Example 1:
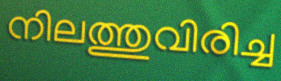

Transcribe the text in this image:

നിലത്തുവിരിച്ച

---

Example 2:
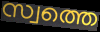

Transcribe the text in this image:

സ്വത്തെ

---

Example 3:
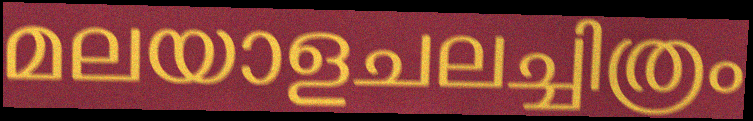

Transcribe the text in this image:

മലയാളചലച്ചിത്രം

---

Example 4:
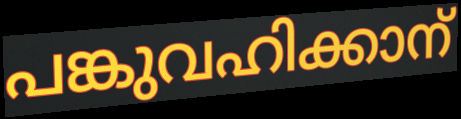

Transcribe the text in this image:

പങ്കുവഹിക്കാന്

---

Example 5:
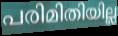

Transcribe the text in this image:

പരിമിതിയില്ല